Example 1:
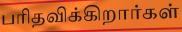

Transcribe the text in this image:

பரிதவிக்கிறார்கள்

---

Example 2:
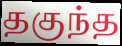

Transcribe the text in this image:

தகுந்த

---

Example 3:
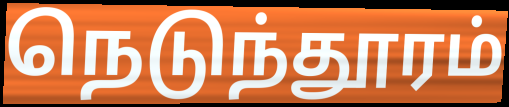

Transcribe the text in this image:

நெடுந்தூரம்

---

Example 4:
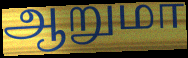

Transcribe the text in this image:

ஆறுமா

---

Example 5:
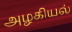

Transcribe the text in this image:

அழகியல்